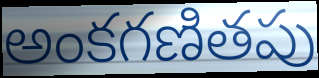
అంకగణితపు